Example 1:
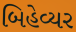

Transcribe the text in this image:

બિહેવ્યર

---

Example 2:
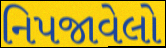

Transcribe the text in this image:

નિપજાવેલો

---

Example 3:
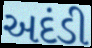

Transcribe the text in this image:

અદંડી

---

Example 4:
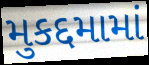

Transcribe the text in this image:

મુકદ્દમામાં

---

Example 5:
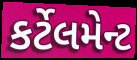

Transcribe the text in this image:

કર્ટેલમેન્ટ